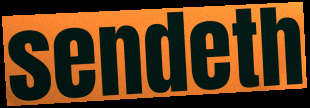
sendeth